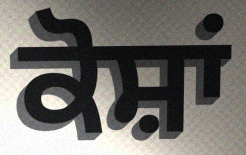
ਕੋਸ਼ਾਂ